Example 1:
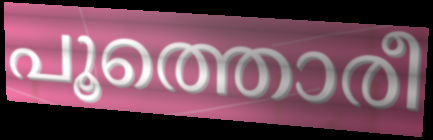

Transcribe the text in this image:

പൂത്തൊരീ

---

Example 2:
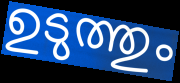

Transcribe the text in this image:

ഉടുത്തും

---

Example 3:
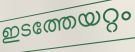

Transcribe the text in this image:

ഇടത്തേയറ്റം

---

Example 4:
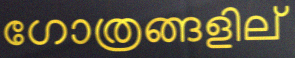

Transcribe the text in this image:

ഗോത്രങ്ങളില്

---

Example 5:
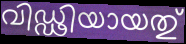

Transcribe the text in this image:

വിഡ്ഢിയായതു്